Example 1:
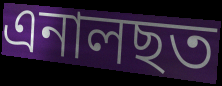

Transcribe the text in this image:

এনালছত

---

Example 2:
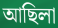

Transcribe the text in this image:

আছিলা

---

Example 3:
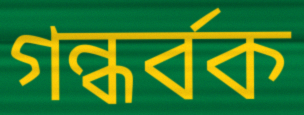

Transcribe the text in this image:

গন্ধৰ্বক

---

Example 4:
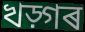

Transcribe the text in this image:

খড়্গৰ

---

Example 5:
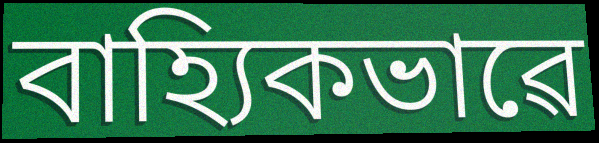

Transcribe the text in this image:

বাহ্যিকভাৱে